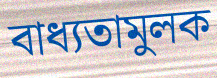
বাধ্যতামুলক